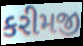
કરીમજી